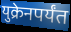
युक्रेनपर्यंत